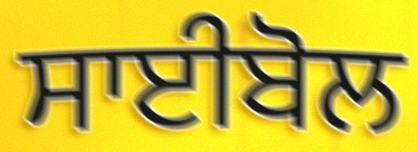
ਸਾਈਬੋਲ